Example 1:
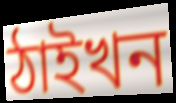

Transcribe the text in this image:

ঠাইখন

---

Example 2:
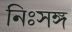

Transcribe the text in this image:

নিঃসঙ্গ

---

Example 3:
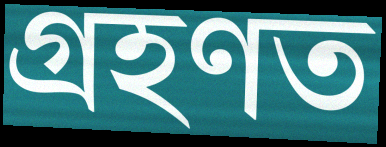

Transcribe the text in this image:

গ্ৰহণত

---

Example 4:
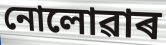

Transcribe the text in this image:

নোলোৱাৰ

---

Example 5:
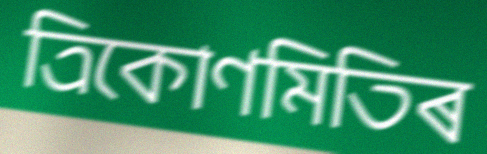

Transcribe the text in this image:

ত্ৰিকোণমিতিৰ